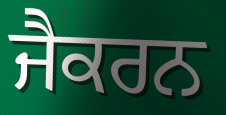
ਜੈਕਰਨ